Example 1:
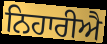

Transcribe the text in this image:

ਨਿਹਾਰੀਐ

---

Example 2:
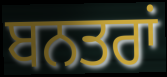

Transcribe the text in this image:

ਬਨਤਰਾਂ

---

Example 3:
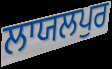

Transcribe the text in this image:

ਲਾਯਲਪੁਰ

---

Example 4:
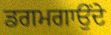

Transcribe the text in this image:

ਡਗਮਗਾਉਂਦੇ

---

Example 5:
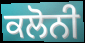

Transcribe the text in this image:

ਕਲੋਨੀ